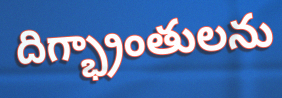
దిగ్భ్రాంతులను